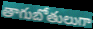
తాగుబోతులుగా